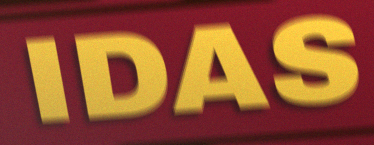
IDAS